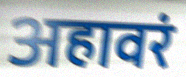
अहावरं